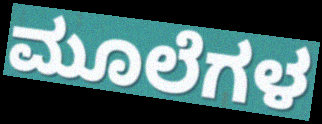
ಮೂಲೆಗಳ